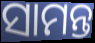
ସାମନ୍ତ